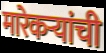
मारेकऱ्यांची